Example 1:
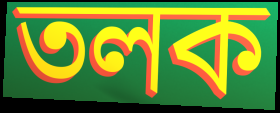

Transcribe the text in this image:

তলক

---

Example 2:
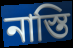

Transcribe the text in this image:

নাস্তি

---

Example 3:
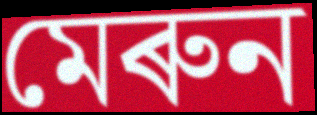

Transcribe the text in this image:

মেৰুন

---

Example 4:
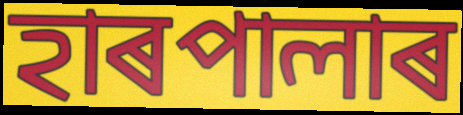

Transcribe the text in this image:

হাৰপালাৰ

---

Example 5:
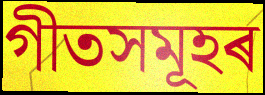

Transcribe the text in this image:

গীতসমূহৰ